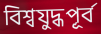
বিশ্বযুদ্ধপূর্ব